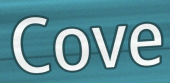
Cove